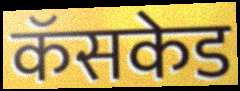
कॅसकेड